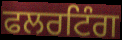
ਫਲਰਟਿੰਗ